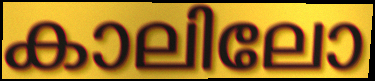
കാലിലോ